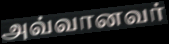
அவ்வானவர்